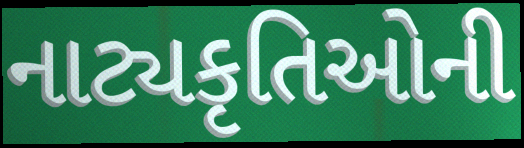
નાટ્યકૃતિઓની